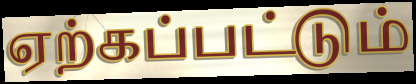
ஏற்கப்பட்டும்